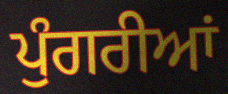
ਪੁੰਗਰੀਆਂ